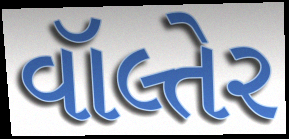
વૉલ્તેર